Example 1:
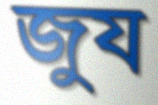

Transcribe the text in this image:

জুয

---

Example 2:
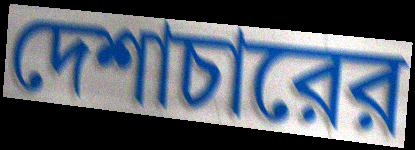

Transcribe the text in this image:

দেশাচারের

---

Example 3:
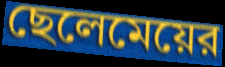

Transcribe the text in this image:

ছেলেমেয়ের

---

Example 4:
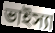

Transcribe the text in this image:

ভাইস্যা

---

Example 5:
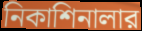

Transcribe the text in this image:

নিকাশিনালার